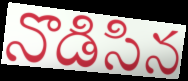
నొడిసిన